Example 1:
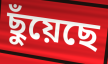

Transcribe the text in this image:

ছুঁয়েছে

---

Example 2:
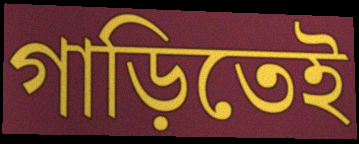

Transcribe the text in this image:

গাড়িতেই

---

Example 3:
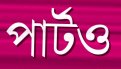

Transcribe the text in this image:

পার্টও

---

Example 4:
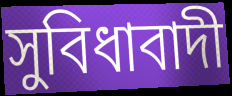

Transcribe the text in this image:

সুবিধাবাদী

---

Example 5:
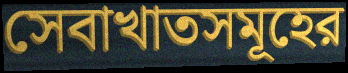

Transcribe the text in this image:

সেবাখাতসমূহের